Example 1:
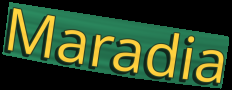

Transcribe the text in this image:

Maradia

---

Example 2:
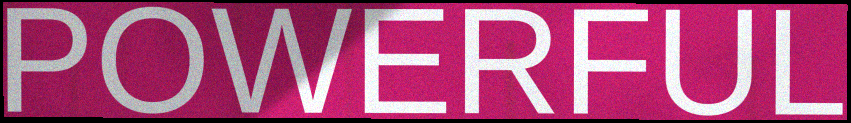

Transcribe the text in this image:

POWERFUL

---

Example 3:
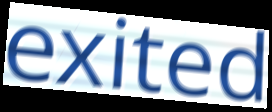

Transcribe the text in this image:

exited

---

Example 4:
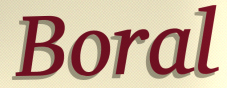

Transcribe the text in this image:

Boral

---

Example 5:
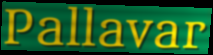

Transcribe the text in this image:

Pallavar